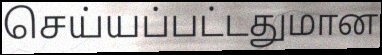
செய்யப்பட்டதுமான